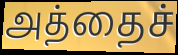
அத்தைச்